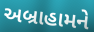
અબ્રાહામને